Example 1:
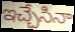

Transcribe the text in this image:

ఇచ్చేసినా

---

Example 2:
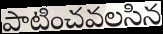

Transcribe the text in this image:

పాటించవలసిన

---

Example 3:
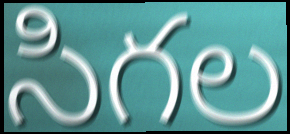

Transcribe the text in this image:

సిగల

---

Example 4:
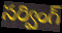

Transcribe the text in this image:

సర్వింగ్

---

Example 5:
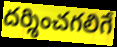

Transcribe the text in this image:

దర్శించగలిగే